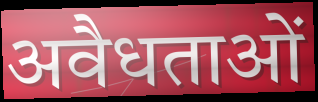
अवैधताओं